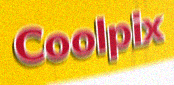
Coolpix